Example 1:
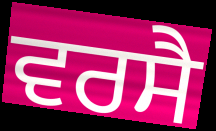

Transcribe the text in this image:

ਵਰਸੈ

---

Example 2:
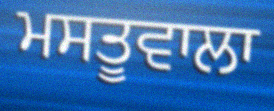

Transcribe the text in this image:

ਮਸਤੂਵਾਲਾ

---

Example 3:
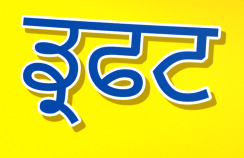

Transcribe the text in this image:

ਡ੍ਰਫਟ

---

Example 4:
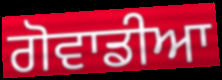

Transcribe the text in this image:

ਗੋਵਾਡੀਆ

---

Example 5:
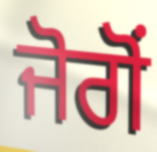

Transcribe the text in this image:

ਜੋਗੋਂ